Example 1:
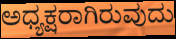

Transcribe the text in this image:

ಅಧ್ಯಕ್ಷರಾಗಿರುವುದು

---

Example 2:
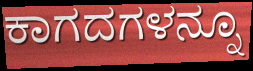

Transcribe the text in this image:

ಕಾಗದಗಳನ್ನೂ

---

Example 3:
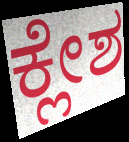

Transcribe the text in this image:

ಕ್ಲೇಶ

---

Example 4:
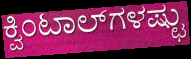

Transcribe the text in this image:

ಕ್ವಿಂಟಾಲ್‌ಗಳಷ್ಟು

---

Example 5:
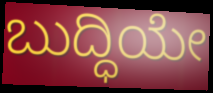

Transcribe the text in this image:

ಬುದ್ಧಿಯೇ